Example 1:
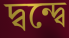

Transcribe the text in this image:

দ্বন্দ্বে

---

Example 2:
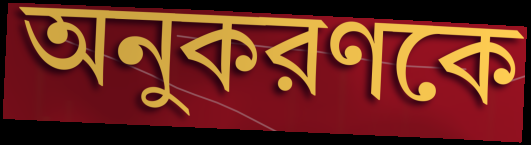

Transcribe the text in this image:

অনুকরণকে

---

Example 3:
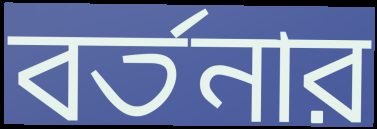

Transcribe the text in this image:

বর্তনার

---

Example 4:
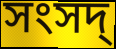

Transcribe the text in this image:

সংসদ্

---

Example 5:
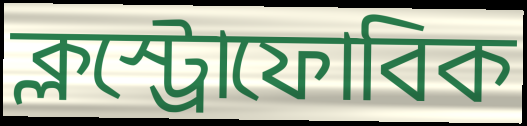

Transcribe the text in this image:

ক্লস্ট্রোফোবিক